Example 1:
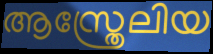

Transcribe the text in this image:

ആസ്ത്രേലിയ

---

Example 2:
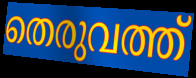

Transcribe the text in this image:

തെരുവത്ത്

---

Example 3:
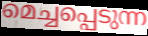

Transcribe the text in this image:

മെച്ചപ്പെടുന്ന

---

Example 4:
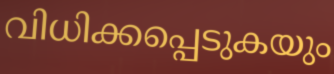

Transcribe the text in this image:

വിധിക്കപ്പെടുകയും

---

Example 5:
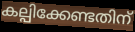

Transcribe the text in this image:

കല്പിക്കേണ്ടതിന്